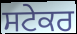
ਸਟੇਕਰ